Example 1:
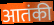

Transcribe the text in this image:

आतंकी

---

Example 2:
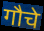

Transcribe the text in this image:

गौचे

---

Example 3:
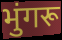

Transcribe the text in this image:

भुंगरू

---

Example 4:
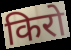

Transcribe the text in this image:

किरो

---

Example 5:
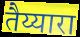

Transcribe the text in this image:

तैय्यारा